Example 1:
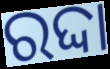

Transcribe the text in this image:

ରଦ୍ଦା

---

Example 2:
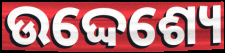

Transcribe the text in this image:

ଉଦ୍ଦେଶ୍ୟେ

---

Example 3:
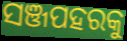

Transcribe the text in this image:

ସଞ୍ଜପହରକୁ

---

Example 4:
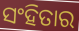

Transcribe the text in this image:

ସଂହିତାର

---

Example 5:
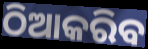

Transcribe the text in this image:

ଠିଆକରିବ